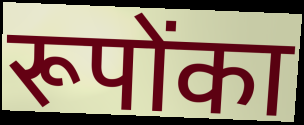
रूपोंका